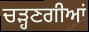
ਚੜ੍ਹਣਗੀਆਂ